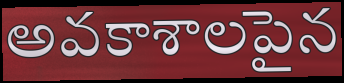
అవకాశాలపైన